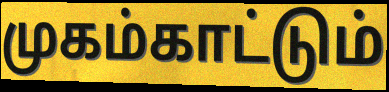
முகம்காட்டும்